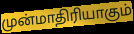
முன்மாதிரியாகும்